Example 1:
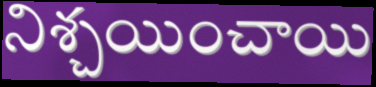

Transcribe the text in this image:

నిశ్చయించాయి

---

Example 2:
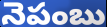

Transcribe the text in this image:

నెపంబు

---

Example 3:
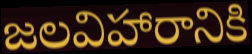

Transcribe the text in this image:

జలవిహారానికి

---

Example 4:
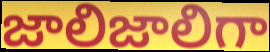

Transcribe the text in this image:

జాలిజాలిగా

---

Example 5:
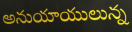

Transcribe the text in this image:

అనుయాయులున్న